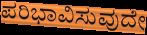
ಪರಿಭಾವಿಸುವುದೇ